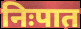
निःपात